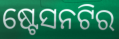
ଷ୍ଟେସନଟିର